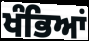
ਖੰਭਿਆਂ